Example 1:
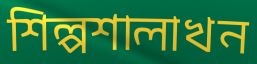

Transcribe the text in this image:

শিল্পশালাখন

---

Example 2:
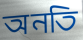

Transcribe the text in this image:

অনতি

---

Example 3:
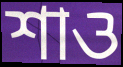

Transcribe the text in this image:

শাও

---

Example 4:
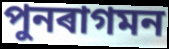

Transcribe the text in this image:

পুনৰাগমন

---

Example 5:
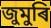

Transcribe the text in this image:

জুমুৰি